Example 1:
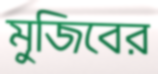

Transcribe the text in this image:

মুজিবের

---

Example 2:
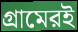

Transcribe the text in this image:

গ্রামেরই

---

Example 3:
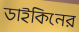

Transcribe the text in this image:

ডাইকিনের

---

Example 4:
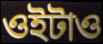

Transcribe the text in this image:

ওইটাও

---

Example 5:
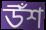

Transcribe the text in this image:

উঁশ